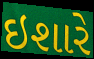
ઇશારે